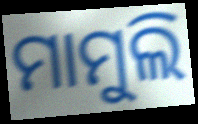
ମାମୁଲି